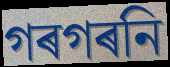
গৰগৰনি